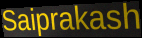
Saiprakash